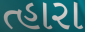
ત્હારા